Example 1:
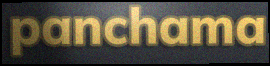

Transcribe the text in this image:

panchama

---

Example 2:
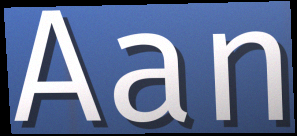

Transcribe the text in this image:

Aan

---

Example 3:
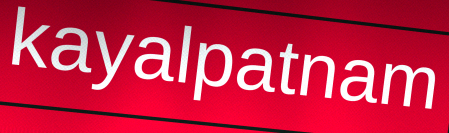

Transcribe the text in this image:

kayalpatnam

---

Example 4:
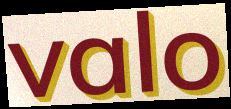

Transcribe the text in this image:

valo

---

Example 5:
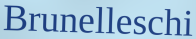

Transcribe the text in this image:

Brunelleschi